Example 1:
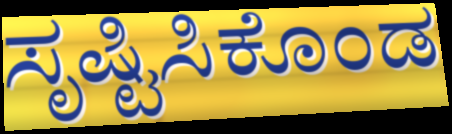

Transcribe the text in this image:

ಸೃಷ್ಟಿಸಿಕೊಂಡ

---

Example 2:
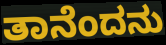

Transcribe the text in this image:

ತಾನೆಂದನು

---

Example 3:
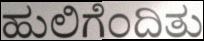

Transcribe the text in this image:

ಹುಲಿಗೆಂದಿತು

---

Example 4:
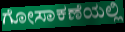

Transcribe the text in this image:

ಗೋಸಾಕಣೆಯಲ್ಲಿ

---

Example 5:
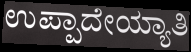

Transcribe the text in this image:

ಉಪ್ಪಾದೇಯ್ಯಾತಿ